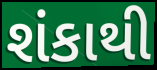
શંકાથી